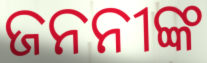
ଜନନୀଙ୍କ